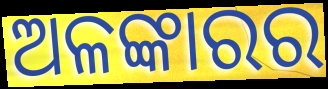
ଅଳଙ୍କାରର